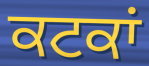
ਕਟਕਾਂ